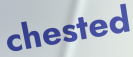
chested